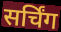
सर्चिंग